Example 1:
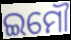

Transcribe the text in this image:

ଇମୌ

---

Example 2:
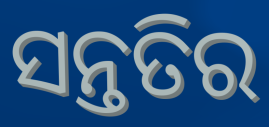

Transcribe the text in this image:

ସନ୍ତତିର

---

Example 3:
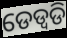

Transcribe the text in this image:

ଡେଡ୍ବଡି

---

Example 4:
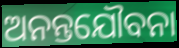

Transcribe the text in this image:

ଅନନ୍ତଯୌବନା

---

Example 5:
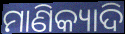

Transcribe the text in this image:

ମାଣିକ୍ୟାଦି